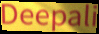
Deepali